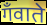
गँवाते